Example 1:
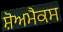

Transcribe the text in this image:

ਸ਼ੋਅਮੈਕਸ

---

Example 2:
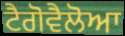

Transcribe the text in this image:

ਟੈਗੋਵੈਲੋਆ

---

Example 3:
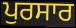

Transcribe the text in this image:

ਪੁਰਸਾਰ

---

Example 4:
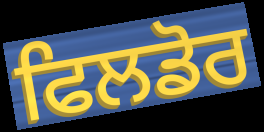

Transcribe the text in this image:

ਫਿਲਡੋਰ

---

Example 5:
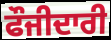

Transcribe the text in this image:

ਫੌਜੀਦਾਰੀ